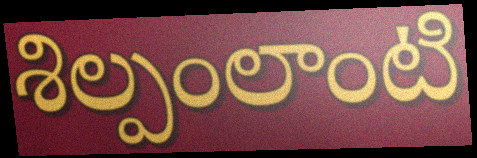
శిల్పంలాంటి